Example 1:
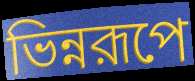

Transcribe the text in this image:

ভিন্নরূপে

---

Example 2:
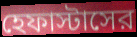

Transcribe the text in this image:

হেফাস্টাসের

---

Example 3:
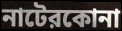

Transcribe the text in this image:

নাটেরকোনা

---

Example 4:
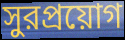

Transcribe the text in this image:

সুরপ্রয়োগ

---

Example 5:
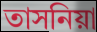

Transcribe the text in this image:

তাসনিয়া